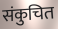
संकुचित